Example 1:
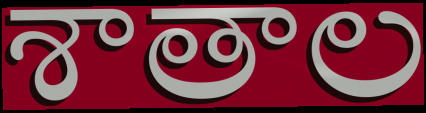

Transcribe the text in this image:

శాతాల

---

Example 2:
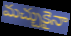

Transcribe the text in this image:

మచ్చుకైనా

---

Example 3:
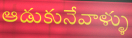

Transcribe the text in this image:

ఆడుకునేవాళ్ళు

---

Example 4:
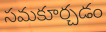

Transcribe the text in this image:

సమకూర్చడం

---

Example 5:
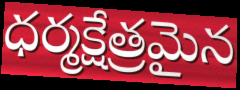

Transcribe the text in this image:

ధర్మక్షేత్రమైన